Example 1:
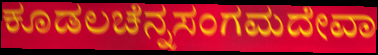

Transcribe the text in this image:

ಕೂಡಲಚೆನ್ನಸಂಗಮದೇವಾ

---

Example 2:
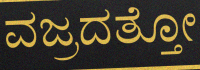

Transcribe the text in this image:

ವಜ್ರದತ್ತೋ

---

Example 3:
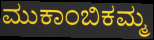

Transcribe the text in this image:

ಮುಕಾಂಬಿಕಮ್ಮ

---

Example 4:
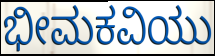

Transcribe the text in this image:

ಭೀಮಕವಿಯು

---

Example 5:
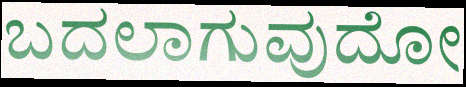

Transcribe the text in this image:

ಬದಲಾಗುವುದೋ